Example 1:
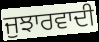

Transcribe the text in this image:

ਜੁਝਾਰਵਾਦੀ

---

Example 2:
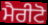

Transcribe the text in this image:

ਮੈਰੀਟੋ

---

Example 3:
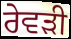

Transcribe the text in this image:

ਰੇਵੜੀ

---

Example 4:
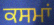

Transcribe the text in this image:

ਕਸਮਾਂ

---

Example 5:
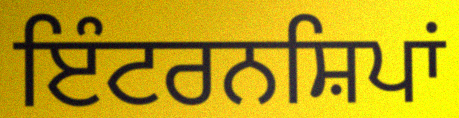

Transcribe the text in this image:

ਇੰਟਰਨਸ਼ਿਪਾਂ